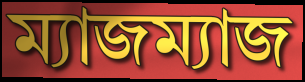
ম্যাজম্যাজ